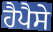
ਹੈਪੈਸੇ